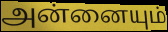
அன்னையும்